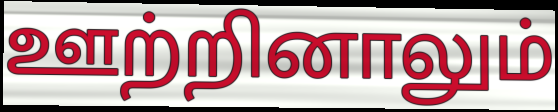
ஊற்றினாலும்